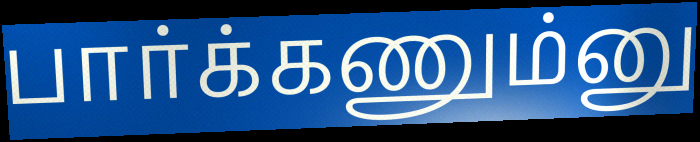
பார்க்கணும்னு